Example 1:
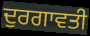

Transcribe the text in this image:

ਦੁਰਗਾਵਤੀ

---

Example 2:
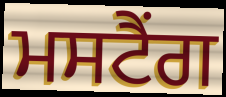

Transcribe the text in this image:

ਮਸਟੈਂਗ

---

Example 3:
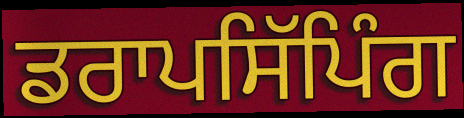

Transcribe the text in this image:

ਡਰਾਪਸਿੱਪਿੰਗ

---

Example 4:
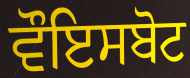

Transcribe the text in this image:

ਵੌਇਸਬੋਟ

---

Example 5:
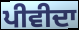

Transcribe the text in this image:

ਪੀਵੀਦਾ